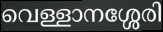
വെള്ളാനശ്ശേരി